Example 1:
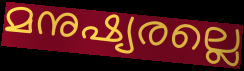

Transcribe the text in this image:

മനുഷ്യരല്ലെ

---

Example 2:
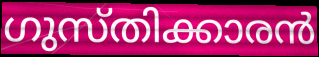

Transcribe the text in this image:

ഗുസ്തിക്കാരൻ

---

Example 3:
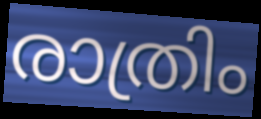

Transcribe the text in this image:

രാത്രിം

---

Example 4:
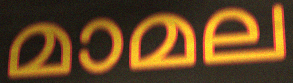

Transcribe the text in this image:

മാമല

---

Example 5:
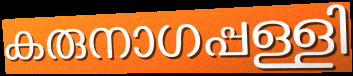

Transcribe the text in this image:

കരുനാഗപ്പള്ളി